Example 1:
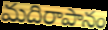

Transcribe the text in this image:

మదిరాపానం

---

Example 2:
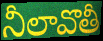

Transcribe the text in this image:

నీలావొతీ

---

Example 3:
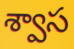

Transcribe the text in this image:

శ్వాస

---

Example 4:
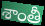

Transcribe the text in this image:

శాంతీ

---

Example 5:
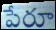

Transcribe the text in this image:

పేరూ